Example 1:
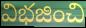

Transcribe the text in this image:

విభజించి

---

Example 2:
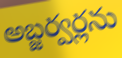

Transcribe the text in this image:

అబ్జర్వర్లను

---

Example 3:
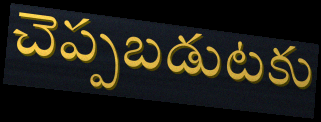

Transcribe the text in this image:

చెప్పబడుటకు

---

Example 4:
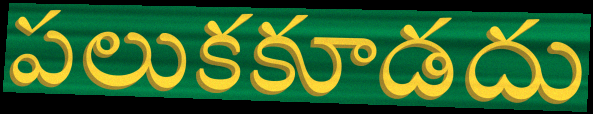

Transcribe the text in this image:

పలుకకూడదు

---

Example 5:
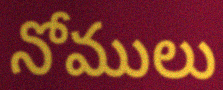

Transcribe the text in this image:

నోములు